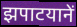
झपाटयानें